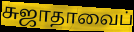
சுஜாதாவைப்